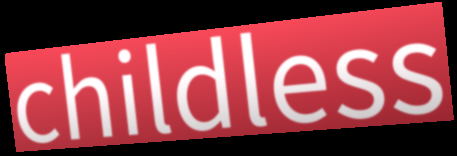
childless